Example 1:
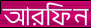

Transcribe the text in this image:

আরফিন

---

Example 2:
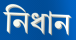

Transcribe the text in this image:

নিধান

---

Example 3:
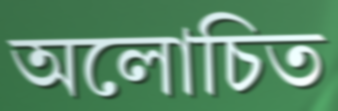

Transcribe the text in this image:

অলোচিত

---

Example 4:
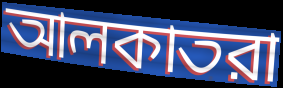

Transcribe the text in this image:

আলকাতরা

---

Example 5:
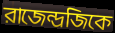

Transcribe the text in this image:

রাজেন্দ্রজিকে